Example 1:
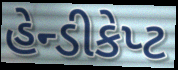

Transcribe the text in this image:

હેન્ડીકેપ્ટ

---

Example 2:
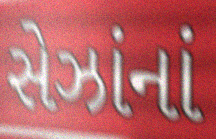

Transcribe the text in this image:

સેઝાંનાં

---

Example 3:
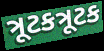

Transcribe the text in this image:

ત્રૂટકત્રૂટક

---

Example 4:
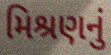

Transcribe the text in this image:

મિશ્રણનું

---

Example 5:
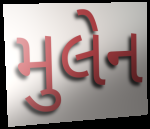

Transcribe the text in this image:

મુલેન